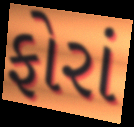
ફોરાં